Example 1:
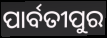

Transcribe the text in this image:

ପାର୍ବତୀପୁର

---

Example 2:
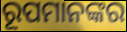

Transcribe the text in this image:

ରୂପମାନଙ୍କର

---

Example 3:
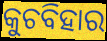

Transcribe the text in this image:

କୁଚବିହାର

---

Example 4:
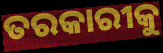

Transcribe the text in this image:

ତରକାରୀକୁ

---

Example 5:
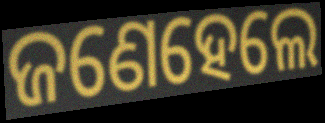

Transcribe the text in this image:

ଜଣେହେଲେ